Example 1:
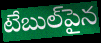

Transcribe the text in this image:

టేబుల్‌పైన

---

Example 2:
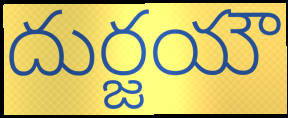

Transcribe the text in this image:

దుర్జయౌ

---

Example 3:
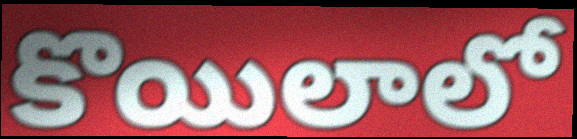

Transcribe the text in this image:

కొయిలాలో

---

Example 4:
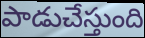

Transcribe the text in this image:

పాడుచేస్తుంది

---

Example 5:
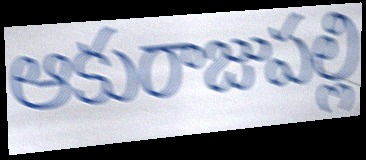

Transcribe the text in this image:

ఆకురాజుపల్లి